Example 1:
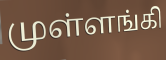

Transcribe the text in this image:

முள்ளங்கி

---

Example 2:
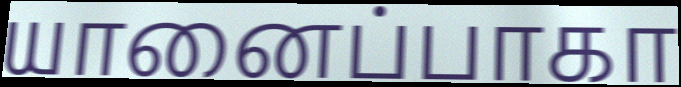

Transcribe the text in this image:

யானைப்பாகா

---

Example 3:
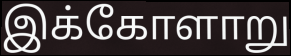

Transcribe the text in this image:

இக்கோளாறு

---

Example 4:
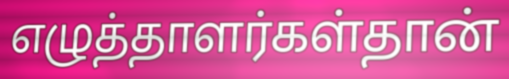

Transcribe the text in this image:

எழுத்தாளர்கள்தான்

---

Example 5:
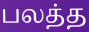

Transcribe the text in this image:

பலத்த